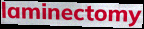
laminectomy